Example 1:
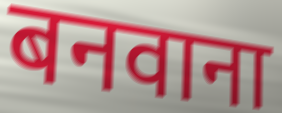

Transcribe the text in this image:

बनवाना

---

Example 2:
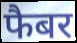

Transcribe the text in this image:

फैबर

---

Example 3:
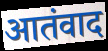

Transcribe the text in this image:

आतंवाद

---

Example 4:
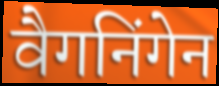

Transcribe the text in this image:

वैगनिंगेन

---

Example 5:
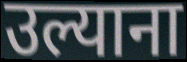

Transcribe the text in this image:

उल्याना